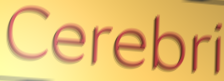
Cerebri